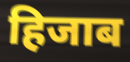
हिजाब